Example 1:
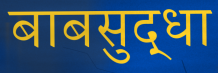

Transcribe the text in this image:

बाबसुद्धा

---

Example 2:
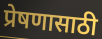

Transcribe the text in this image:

प्रेषणासाठी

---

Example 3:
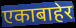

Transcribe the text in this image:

एकाबाहेर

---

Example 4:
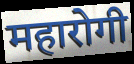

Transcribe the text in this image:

महारोगी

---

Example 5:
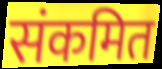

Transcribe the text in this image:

संकमित